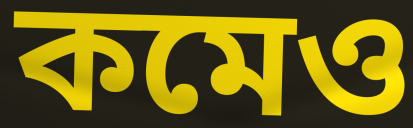
কমেও